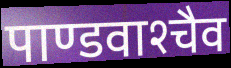
पाण्डवाश्चैव